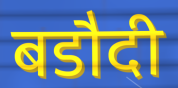
बडौदी